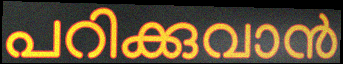
പറിക്കുവാൻ